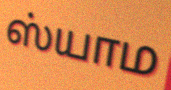
ஸ்யாம